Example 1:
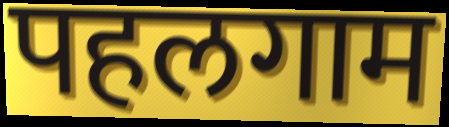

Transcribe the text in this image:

पहलगाम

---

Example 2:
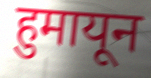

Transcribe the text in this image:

हुमायून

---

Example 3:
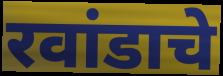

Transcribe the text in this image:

रवांडाचे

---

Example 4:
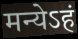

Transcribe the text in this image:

मन्येऽहं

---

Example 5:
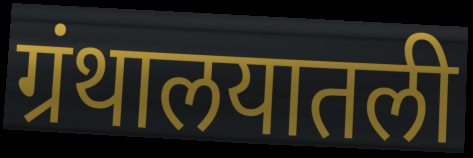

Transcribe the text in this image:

ग्रंथालयातली